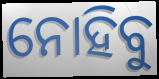
ନୋହିବୁ